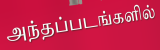
அந்தப்படங்களில்